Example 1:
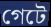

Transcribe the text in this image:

গেটে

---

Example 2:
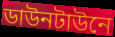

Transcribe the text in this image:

ডাউনটাউনে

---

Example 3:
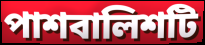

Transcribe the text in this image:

পাশবালিশটি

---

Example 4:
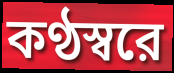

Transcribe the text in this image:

কণ্ঠস্বরে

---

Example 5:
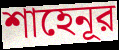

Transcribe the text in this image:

শাহেনূর